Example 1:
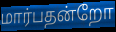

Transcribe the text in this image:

மார்பதன்றோ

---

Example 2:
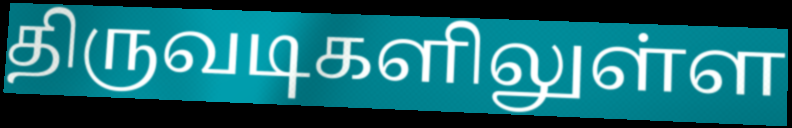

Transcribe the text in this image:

திருவடிகளிலுள்ள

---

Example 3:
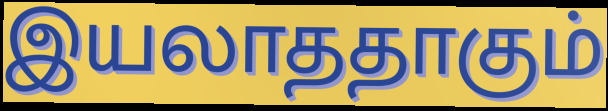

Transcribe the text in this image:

இயலாததாகும்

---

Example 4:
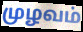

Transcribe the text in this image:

முழவம்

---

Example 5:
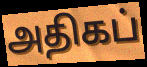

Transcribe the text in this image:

அதிகப்